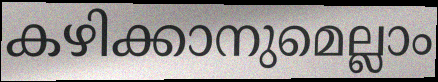
കഴിക്കാനുമെല്ലാം